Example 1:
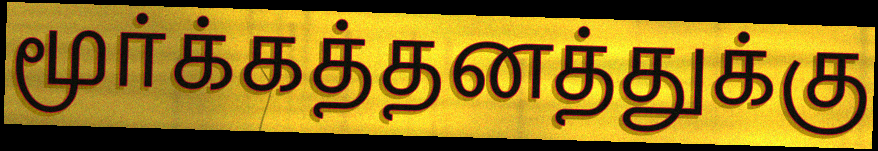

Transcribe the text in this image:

மூர்க்கத்தனத்துக்கு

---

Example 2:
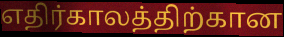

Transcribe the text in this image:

எதிர்காலத்திற்கான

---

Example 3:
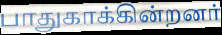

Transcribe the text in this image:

பாதுகாக்கின்றனர்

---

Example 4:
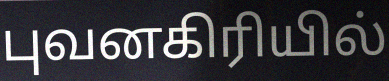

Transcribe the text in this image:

புவனகிரியில்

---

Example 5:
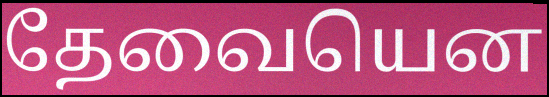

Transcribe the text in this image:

தேவையென